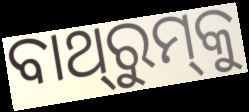
ବାଥ୍‌ରୁମ୍‌କୁ